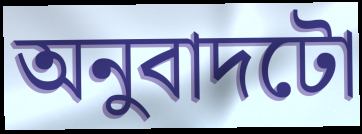
অনুবাদটো